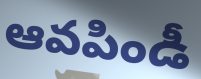
ఆవపిండీ